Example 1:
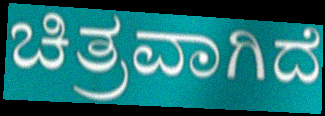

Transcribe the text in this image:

ಚಿತ್ರವಾಗಿದೆ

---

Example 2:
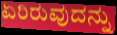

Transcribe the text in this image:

ಏರಿರುವುದನ್ನು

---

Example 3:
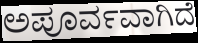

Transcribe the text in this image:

ಅಪೂರ್ವವಾಗಿದೆ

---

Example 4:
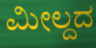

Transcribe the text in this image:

ಮೀಲ್ದದ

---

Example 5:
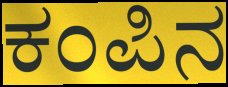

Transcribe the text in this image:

ಕಂಪಿನ